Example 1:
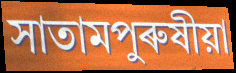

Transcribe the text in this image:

সাতামপুৰুষীয়া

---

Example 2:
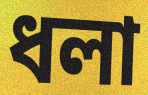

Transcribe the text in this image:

ধলা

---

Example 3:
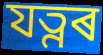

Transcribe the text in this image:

যত্নৰ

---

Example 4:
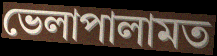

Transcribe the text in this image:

ভেলাপালামত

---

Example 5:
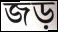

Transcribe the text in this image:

জড়